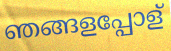
ഞങ്ങളപ്പോള്